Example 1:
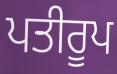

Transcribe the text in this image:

ਪਤੀਰੂਪ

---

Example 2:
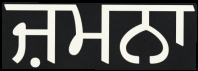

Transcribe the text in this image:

ਜ਼ਮਨਾ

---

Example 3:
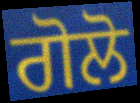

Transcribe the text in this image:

ਗੋਲੋ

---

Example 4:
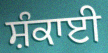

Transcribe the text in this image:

ਸ਼ੰਕਾਈ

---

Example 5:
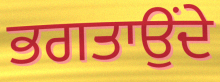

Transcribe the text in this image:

ਭਗਤਾਉਂਦੇ